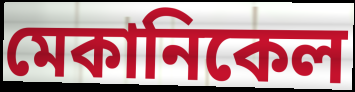
মেকানিকেল